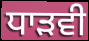
ਧਾੜਵੀ